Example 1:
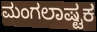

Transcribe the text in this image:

ಮಂಗಲಾಷ್ಟಕ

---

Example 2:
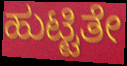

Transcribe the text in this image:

ಹುಟ್ಟಿತೇ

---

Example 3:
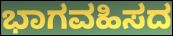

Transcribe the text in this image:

ಭಾಗವಹಿಸದ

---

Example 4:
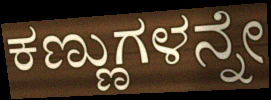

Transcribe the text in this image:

ಕಣ್ಣುಗಳನ್ನೇ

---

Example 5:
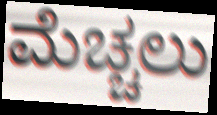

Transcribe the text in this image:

ಮೆಚ್ಚಲು